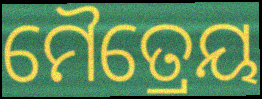
ମୈତ୍ରେୟ